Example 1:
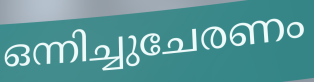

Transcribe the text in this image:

ഒന്നിച്ചുചേരണം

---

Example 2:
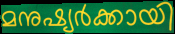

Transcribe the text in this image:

മനുഷ്യർക്കായി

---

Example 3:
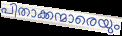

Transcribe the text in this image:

പിതാക്കന്മാരെയും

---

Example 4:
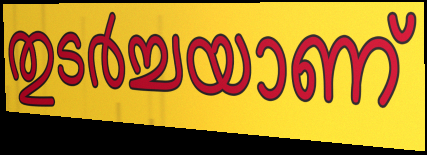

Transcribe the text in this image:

തുടർച്ചയാണ്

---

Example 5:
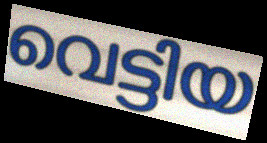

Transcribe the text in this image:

വെട്ടിയ